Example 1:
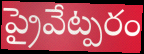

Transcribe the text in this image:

ప్రైవేట్పరం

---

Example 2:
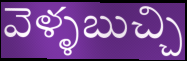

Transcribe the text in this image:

వెళ్ళబుచ్చి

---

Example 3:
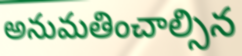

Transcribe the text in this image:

అనుమతించాల్సిన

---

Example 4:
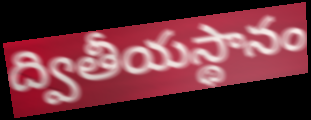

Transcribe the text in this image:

ద్వితీయస్థానం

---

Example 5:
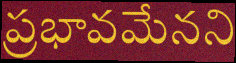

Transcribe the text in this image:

ప్రభావమేనని